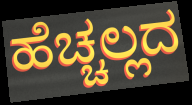
ಹೆಚ್ಚಲ್ಲದ